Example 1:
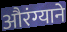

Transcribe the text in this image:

औरंग्याने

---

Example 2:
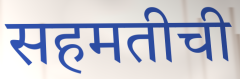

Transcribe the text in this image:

सहमतीची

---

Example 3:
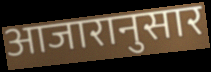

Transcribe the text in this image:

आजारानुसार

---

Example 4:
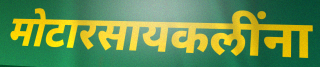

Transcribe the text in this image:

मोटारसायकलींना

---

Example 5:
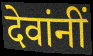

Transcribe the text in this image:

देवांनीं